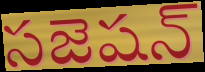
సజెషన్